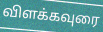
விளக்கவுரை